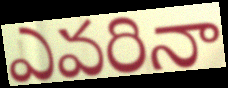
ఎవరినా